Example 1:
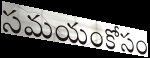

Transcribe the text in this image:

సమయంకోసం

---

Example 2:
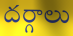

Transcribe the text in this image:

దర్గాలు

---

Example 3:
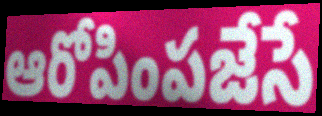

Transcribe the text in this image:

ఆరోపింపజేసే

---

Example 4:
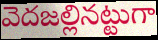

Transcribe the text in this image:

వెదజల్లినట్టుగా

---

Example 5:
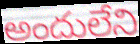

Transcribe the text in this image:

అందులేని